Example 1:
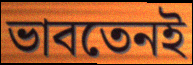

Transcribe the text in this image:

ভাবতেনই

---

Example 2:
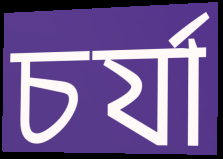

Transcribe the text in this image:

চর্যা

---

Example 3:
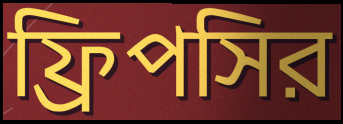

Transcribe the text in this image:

ফ্রিপসির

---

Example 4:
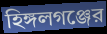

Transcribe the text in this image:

হিঙ্গলগঞ্জের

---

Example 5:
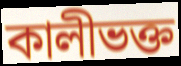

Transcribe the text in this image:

কালীভক্ত